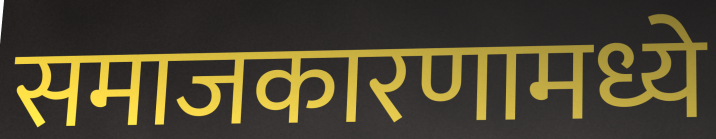
समाजकारणामध्ये